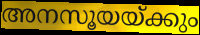
അനസൂയയ്ക്കും